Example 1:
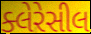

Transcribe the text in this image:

ક્લેરેસીલ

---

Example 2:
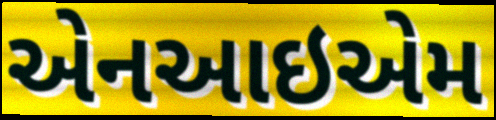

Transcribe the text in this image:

એનઆઇએમ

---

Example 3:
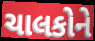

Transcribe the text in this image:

ચાલકોને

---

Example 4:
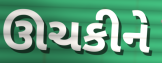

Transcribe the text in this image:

ઊચકીને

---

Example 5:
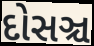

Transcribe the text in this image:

દોસઞ્ચ